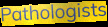
Pathologists